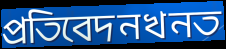
প্ৰতিবেদনখনত